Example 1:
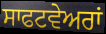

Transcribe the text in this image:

ਸਾਫਟਵੇਅਰਾਂ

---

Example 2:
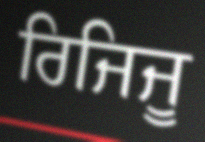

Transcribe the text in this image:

ਰਿਜਿਜੂ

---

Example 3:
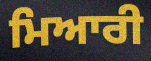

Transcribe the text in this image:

ਮਿਆਰੀ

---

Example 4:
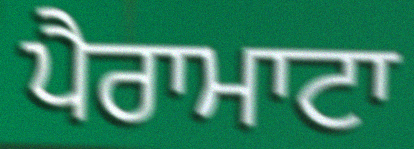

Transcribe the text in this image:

ਪੈਰਾਮਾਟਾ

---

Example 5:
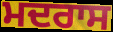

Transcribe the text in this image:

ਮਦਰਾਸ